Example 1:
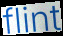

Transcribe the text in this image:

flint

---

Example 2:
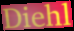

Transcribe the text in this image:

Diehl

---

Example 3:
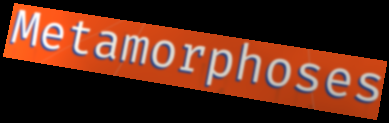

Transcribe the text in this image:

Metamorphoses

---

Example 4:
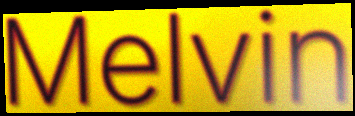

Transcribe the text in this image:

Melvin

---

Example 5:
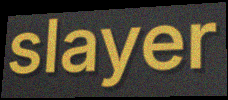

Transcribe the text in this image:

slayer